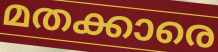
മതക്കാരെ